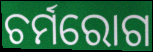
ଚର୍ମରୋଗ